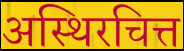
अस्थिरचित्त